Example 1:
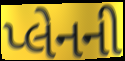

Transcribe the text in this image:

પ્લેનની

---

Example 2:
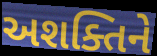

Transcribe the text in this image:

અશક્તિને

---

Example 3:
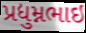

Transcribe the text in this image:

પ્રદ્યુમ્નભાઇ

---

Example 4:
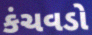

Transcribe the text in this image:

કંચવડો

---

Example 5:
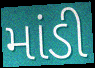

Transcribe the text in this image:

માંડી